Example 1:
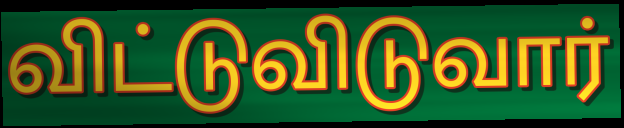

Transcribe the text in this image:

விட்டுவிடுவார்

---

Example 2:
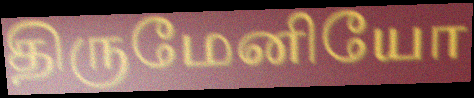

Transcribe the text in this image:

திருமேனியோ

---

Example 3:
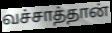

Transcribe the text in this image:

வச்சாத்தான்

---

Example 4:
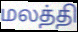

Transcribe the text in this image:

மலத்தி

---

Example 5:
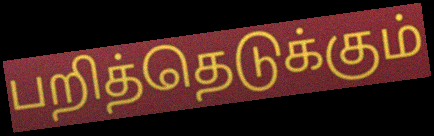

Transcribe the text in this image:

பறித்தெடுக்கும்